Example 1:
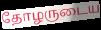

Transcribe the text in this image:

தோழருடைய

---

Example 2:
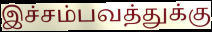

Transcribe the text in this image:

இச்சம்பவத்துக்கு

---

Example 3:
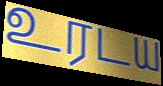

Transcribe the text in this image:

உரடய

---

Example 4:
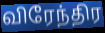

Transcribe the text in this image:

விரேந்திர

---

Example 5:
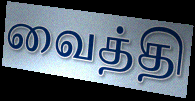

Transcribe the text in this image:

வைத்தி